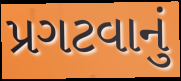
પ્રગટવાનું